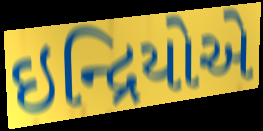
ઇન્દ્રિયોએ